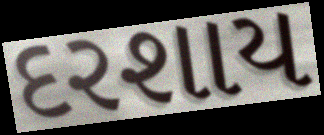
દરશાય